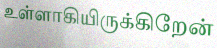
உள்ளாகியிருக்கிறேன்